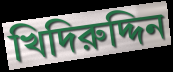
খিদিরুদ্দিন